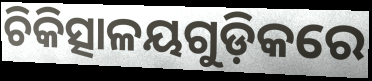
ଚିକିତ୍ସାଳୟଗୁଡ଼ିକରେ